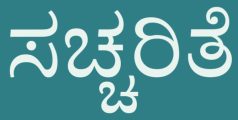
ಸಚ್ಚರಿತೆ